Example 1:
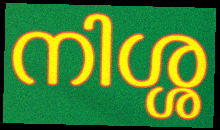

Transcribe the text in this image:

നിശ്ശ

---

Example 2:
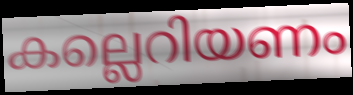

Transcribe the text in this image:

കല്ലെറിയണം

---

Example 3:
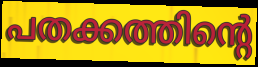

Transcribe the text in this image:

പതക്കത്തിന്റെ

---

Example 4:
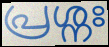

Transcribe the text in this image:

പ്രശ്നഃ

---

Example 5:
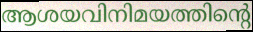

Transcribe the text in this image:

ആശയവിനിമയത്തിന്റെ